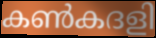
കൺകദളി